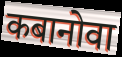
कबानोवा